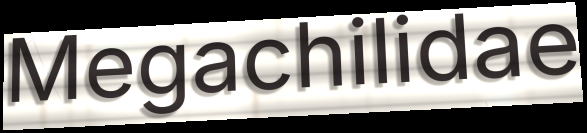
Megachilidae